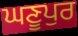
ਘਣੂਪੁਰ